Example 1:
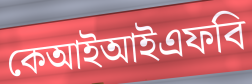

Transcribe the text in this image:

কেআইআইএফবি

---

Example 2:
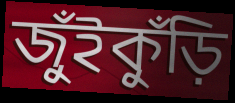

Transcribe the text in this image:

জুঁইকুঁড়ি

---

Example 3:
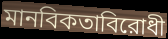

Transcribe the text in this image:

মানবিকতাবিরোধী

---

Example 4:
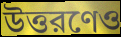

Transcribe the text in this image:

উত্তরণেও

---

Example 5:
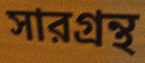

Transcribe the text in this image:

সারগ্রন্থ